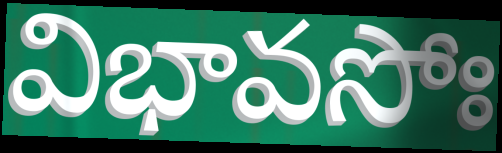
విభావసోః